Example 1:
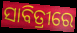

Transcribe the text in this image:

ସାବିତ୍ରୀରେ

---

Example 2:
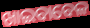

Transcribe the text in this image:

ଖାଇବାବେଳ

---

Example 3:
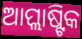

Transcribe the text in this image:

ଆପ୍ଲାଷ୍ଟିକ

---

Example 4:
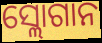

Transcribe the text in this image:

ସ୍ଲୋଗାନ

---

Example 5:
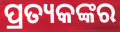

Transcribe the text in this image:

ପ୍ରତ୍ୟକଙ୍କର